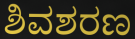
ಶಿವಶರಣ